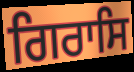
ਗਿਰਾਸਿ